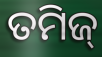
ତମିଜ୍